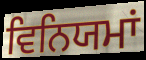
ਵਿਨਿਯਮਾਂ